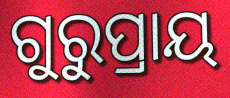
ଗୁରୁପ୍ରାୟ